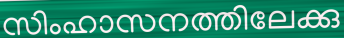
സിംഹാസനത്തിലേക്കു